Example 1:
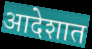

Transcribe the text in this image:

आदेशात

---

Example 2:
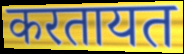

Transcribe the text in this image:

करतायत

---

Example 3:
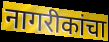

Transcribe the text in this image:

नागरीकांचा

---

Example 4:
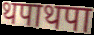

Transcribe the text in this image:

थपाथपा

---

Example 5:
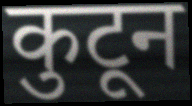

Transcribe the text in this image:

कुटून